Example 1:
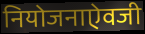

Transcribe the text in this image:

नियोजनाऐवजी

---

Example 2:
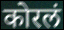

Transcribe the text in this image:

कोरलं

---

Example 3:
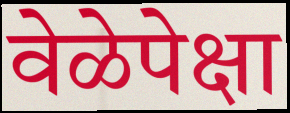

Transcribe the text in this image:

वेळेपेक्षा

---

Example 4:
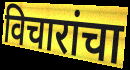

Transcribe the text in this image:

विचारांचा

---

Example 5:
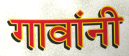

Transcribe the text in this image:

गावांनी